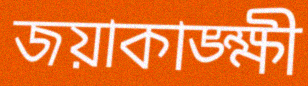
জয়াকাঙ্ক্ষী